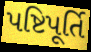
પષ્ટિપૂર્તિ